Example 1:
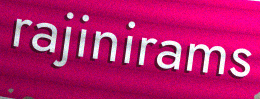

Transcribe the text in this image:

rajinirams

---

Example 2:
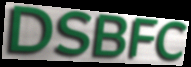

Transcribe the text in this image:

DSBFC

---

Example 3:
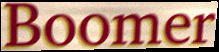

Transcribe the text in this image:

Boomer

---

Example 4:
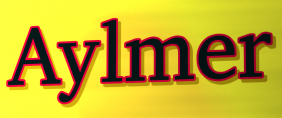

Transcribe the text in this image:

Aylmer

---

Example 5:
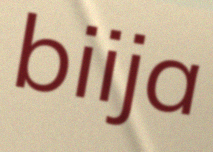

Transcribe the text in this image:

biija